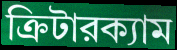
ক্রিটারক্যাম